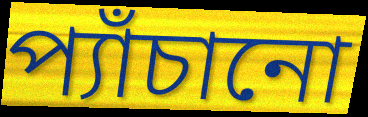
প্যাঁচানো